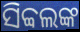
ସିବ୍ବଲଙ୍କ